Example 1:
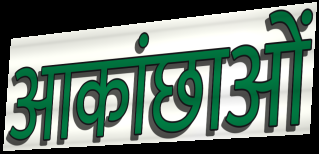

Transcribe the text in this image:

आकांछाओं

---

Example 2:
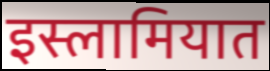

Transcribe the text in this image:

इस्लामियात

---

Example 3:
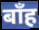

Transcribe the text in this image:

बाँह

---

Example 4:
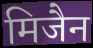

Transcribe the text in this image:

मिजैन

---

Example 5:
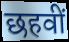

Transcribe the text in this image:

छहवीं